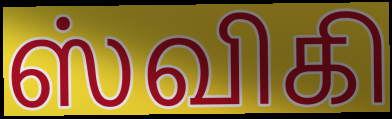
ஸ்விகி